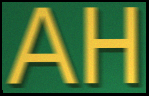
AH